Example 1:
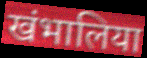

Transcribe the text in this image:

खंभालिया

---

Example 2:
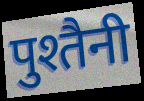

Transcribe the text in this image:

पुश्तैनी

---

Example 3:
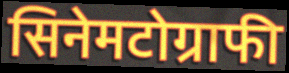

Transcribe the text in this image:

सिनेमटोग्राफी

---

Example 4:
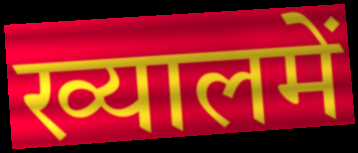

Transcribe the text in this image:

ख्यालमें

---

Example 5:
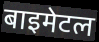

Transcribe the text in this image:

बाइमेटल